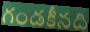
గండకీనది